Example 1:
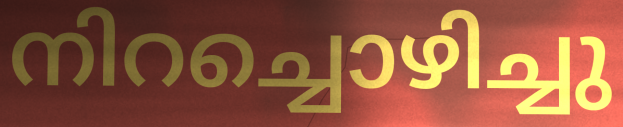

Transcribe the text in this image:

നിറച്ചൊഴിച്ചു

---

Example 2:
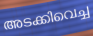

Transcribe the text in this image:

അടക്കിവെച്ച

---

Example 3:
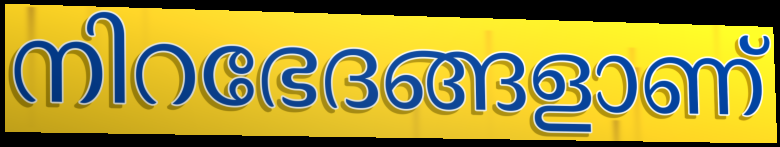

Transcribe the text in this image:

നിറഭേദങ്ങളാണ്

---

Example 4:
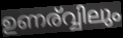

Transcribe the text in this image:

ഉണര്വ്വിലും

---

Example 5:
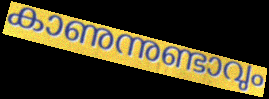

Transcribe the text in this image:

കാണുന്നുണ്ടാവും